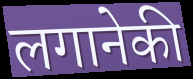
लगानेकी